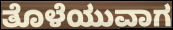
ತೊಳೆಯುವಾಗ